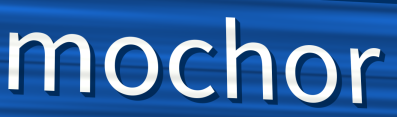
mochor